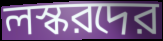
লস্করদের